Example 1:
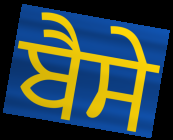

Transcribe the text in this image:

ਬੈਸੇ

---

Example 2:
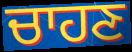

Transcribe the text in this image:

ਚਾਹਣ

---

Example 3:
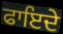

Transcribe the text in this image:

ਫਾਇਦੇ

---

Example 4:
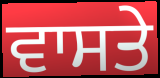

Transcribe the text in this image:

ਵਾਸਤੇ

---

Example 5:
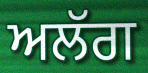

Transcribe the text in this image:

ਅਲੱਗ